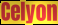
Celyon